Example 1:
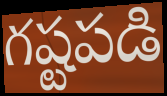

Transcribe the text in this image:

గష్టపడి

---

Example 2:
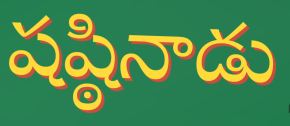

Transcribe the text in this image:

షష్ఠినాడు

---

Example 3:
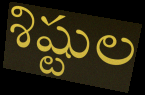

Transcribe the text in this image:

శిష్టుల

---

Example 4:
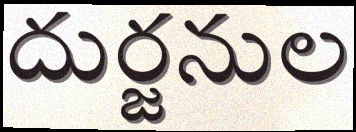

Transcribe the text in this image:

దుర్జనుల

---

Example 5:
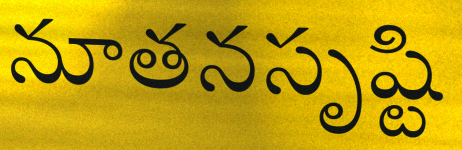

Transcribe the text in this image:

నూతనసృష్టి